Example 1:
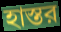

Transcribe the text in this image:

হাস্তর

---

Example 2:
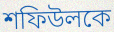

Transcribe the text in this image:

শফিউলকে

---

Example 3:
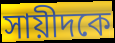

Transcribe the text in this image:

সায়ীদকে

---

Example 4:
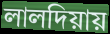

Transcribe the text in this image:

লালদিয়ায়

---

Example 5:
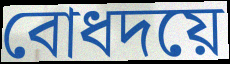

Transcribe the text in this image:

বোধদয়ে